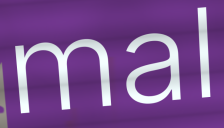
mal